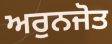
ਅਰੁਨਜੋਤ